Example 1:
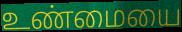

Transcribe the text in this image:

உண்மையை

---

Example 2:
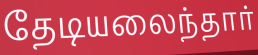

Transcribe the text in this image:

தேடியலைந்தார்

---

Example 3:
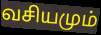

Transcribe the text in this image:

வசியமும்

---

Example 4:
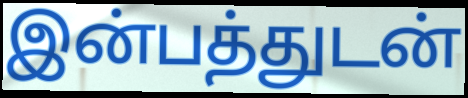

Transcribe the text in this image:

இன்பத்துடன்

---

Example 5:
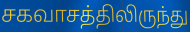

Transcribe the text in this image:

சகவாசத்திலிருந்து